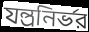
যন্ত্রনির্ভর